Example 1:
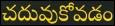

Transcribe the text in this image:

చదువుకోవడం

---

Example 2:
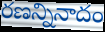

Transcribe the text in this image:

రణన్నినాదం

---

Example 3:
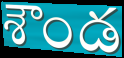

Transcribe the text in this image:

శౌండ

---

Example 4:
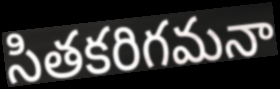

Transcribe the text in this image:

సితకరిగమనా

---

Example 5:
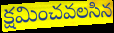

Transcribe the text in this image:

క్షమించవలసిన